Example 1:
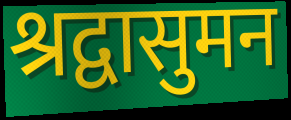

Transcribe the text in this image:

श्रद्वासुमन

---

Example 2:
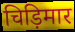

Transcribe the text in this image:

चिड़िमार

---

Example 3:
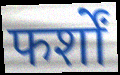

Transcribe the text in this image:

फर्शों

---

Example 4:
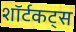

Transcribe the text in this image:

शॉर्टकट्स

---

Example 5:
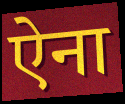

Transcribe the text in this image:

ऐना